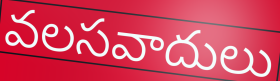
వలసవాదులు